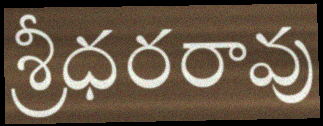
శ్రీధరరావు